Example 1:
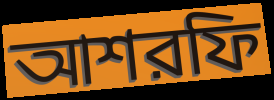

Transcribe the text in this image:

আশরফি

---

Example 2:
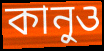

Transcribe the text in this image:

কানুও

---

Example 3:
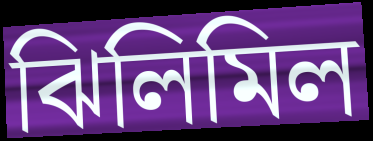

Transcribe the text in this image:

ঝিলিমিল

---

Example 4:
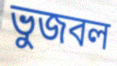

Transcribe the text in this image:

ভুজবল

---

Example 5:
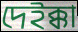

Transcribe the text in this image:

দেইক্কা